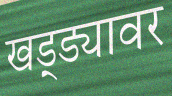
खड्ड्यावर